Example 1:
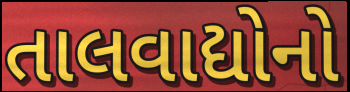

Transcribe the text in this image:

તાલવાદ્યોનો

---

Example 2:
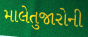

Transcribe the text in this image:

માલેતુજારોની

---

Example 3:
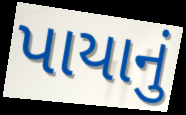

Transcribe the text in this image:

પાયાનું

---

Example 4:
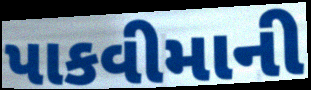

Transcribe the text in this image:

પાકવીમાની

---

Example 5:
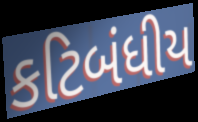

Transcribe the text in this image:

કટિબંધીય